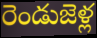
రెండుజెళ్ల